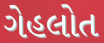
ગેહલોત